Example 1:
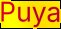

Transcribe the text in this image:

Puya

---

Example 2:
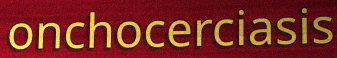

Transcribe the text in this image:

onchocerciasis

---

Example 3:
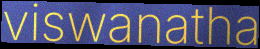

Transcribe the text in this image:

viswanatha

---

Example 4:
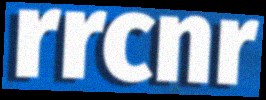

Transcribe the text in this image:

rrcnr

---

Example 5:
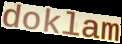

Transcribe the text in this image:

doklam